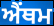
ਐਂਥਮ